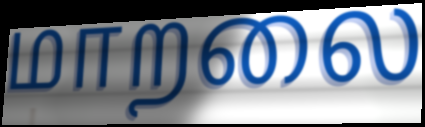
மாறலை